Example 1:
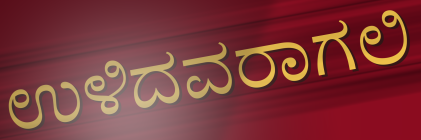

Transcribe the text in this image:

ಉಳಿದವರಾಗಲಿ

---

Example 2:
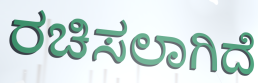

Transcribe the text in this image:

ರಚಿಸಲಾಗಿದೆ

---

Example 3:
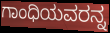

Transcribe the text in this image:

ಗಾಂಧಿಯವರನ್ನ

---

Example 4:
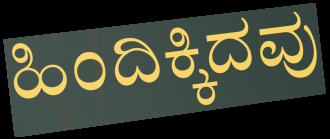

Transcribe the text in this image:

ಹಿಂದಿಕ್ಕಿದವು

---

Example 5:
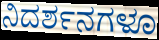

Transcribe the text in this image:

ನಿದರ್ಶನಗಳೂ